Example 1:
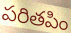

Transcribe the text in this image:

పరితపిం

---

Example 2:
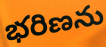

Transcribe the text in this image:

భరిణను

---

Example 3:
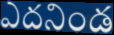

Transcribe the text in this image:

ఎదనిండ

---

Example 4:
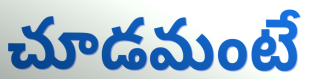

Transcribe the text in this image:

చూడమంటే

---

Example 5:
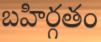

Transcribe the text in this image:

బహిర్గతం